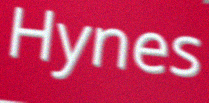
Hynes